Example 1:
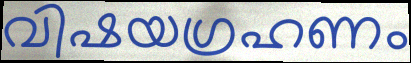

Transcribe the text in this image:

വിഷയഗ്രഹണം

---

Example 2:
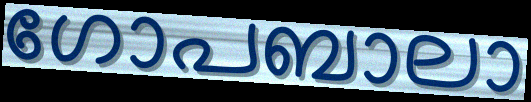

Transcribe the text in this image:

ഗോപബാലാ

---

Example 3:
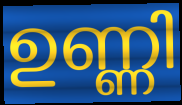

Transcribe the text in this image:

ഉണ്ണി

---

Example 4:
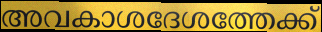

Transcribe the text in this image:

അവകാശദേശത്തേക്ക്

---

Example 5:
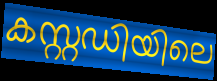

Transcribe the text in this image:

കസ്റ്റഡിയിലെ